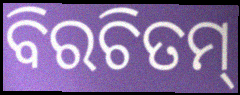
ବିରଚିତମ୍